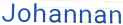
Johannan